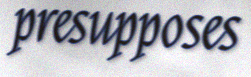
presupposes